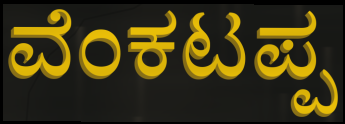
ವೆಂಕಟಪ್ಪ